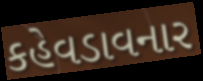
કહેવડાવનાર